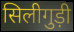
सिलीगुड़ी